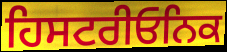
ਹਿਸਟਰੀਓਨਿਕ